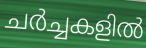
ചർച്ചകളിൽ